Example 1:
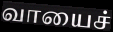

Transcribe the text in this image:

வாயைச்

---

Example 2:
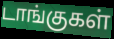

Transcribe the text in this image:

டாங்குகள்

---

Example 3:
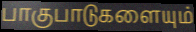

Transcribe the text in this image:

பாகுபாடுகளையும்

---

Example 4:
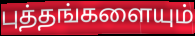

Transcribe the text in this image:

புத்தங்களையும்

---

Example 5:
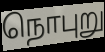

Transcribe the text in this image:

நொபுறு